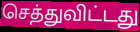
செத்துவிட்டது